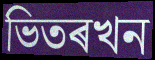
ভিতৰখন